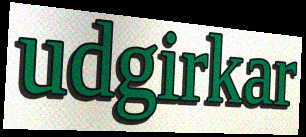
udgirkar